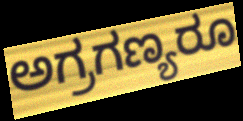
ಅಗ್ರಗಣ್ಯರೂ